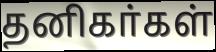
தனிகர்கள்